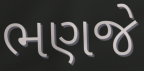
ભણજે